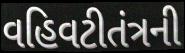
વહિવટીતંત્રની